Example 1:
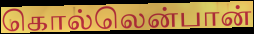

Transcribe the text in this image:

கொல்லென்பான்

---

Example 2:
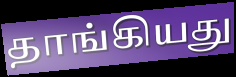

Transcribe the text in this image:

தாங்கியது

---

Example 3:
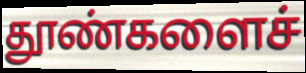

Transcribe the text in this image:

தூண்களைச்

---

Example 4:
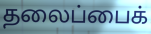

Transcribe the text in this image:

தலைப்பைக்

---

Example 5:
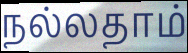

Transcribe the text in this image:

நல்லதாம்